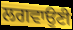
ਲਗਵਾਉਣੀ